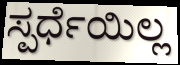
ಸ್ಪರ್ಧೆಯಿಲ್ಲ